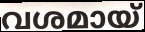
വശമായ്